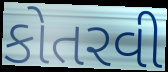
કોતરવી